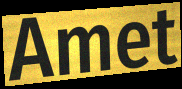
Amet